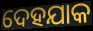
ଦେହଯାକ